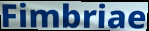
Fimbriae